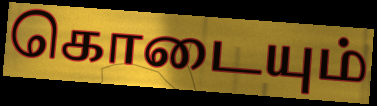
கொடையும்